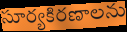
సూర్యకిరణాలను